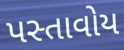
પસ્તાવોય